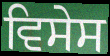
ਵਿਸੇਸ